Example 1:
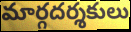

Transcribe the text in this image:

మార్గదర్శకులు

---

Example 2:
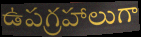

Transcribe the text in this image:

ఉపగ్రహాలుగా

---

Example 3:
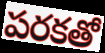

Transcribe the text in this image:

పరకతో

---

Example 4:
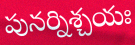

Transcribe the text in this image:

పునర్నిశ్చయః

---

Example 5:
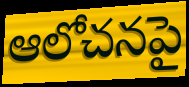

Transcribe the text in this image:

ఆలోచనపై